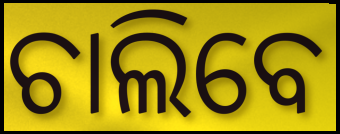
ଚାଲିବେ